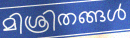
മിശ്രിതങ്ങൾ